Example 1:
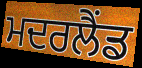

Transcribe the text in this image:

ਮਦਰਲੈਂਡ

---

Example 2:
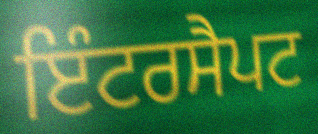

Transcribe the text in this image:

ਇੰਟਰਸੈਪਟ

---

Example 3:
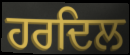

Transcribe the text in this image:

ਹਰਦਿਲ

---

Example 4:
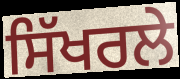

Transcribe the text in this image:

ਸਿੱਖਰਲੇ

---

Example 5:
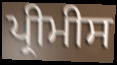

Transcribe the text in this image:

ਪ੍ਰੀਮੀਸ